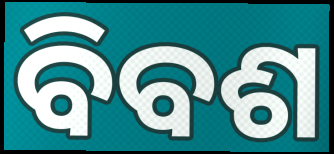
ବିବଶ